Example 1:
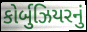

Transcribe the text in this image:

કોર્બુઝિયરનું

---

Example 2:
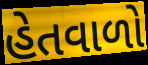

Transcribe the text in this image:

હેતવાળો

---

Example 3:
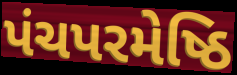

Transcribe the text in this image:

પંચપરમેષ્ઠિ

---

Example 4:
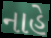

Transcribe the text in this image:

નાહે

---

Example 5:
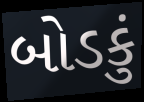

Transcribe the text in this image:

બોડકું